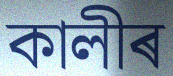
কালীৰ